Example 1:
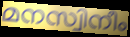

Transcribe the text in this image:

മനസ്വിനീം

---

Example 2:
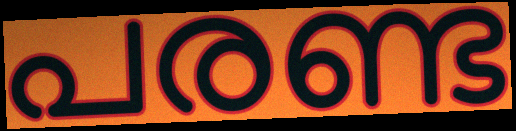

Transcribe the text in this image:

പരണ്ട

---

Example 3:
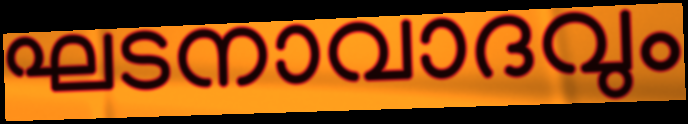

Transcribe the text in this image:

ഘടനാവാദവും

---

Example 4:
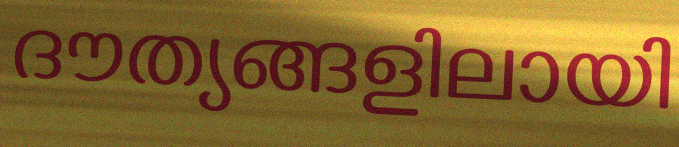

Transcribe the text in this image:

ദൗത്യങ്ങളിലായി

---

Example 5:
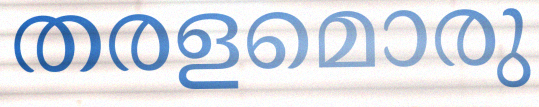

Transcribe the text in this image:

തരളമൊരു